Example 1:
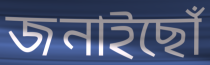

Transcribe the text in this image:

জনাইছোঁ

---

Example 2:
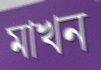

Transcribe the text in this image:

মাখন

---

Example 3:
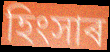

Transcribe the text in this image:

হিংসাৰ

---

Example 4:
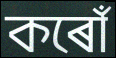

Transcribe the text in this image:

কৰোঁ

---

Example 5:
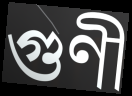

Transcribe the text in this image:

গুণী